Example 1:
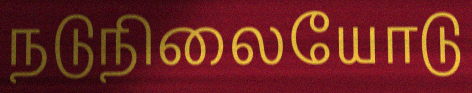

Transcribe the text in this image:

நடுநிலையோடு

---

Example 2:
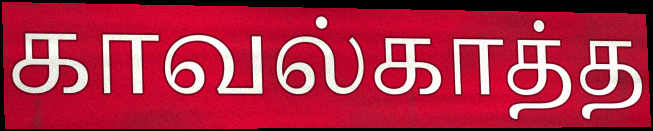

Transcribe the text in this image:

காவல்காத்த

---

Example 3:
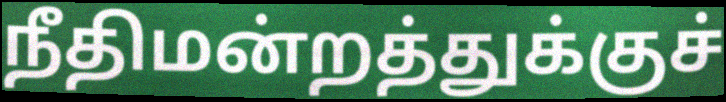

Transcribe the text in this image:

நீதிமன்றத்துக்குச்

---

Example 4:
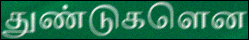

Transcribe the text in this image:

துண்டுகளென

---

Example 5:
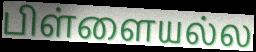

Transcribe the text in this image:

பிள்ளையல்ல